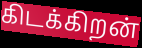
கிடக்கிறன்